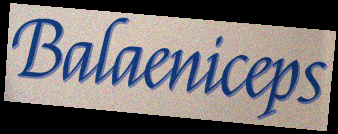
Balaeniceps